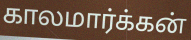
காலமார்க்கன்